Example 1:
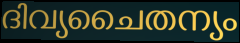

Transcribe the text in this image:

ദിവ്യചൈതന്യം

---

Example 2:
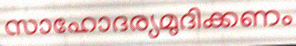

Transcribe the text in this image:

സാഹോദര്യമുദിക്കണം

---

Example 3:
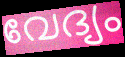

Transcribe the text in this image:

വേദ്യം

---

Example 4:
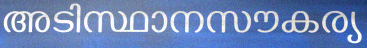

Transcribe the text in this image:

അടിസ്ഥാനസൗകര്യ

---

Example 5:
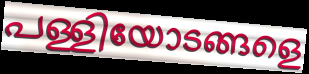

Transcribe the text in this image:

പള്ളിയോടങ്ങളെ